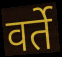
वर्ते